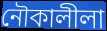
নৌকালীলা